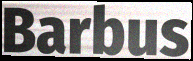
Barbus